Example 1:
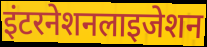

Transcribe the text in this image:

इंटरनेशनलाइजेशन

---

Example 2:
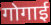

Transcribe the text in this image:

गोगाई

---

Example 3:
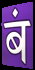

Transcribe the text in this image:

बं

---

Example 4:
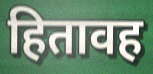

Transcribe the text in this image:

हितावह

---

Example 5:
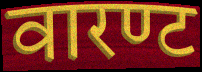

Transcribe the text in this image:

वारण्ट